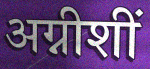
अग्नीशीं